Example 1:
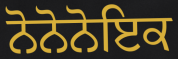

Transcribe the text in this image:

ਨੋਨੋਨੋਇਕ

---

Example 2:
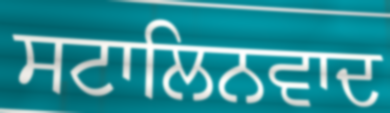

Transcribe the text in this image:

ਸਟਾਲਿਨਵਾਦ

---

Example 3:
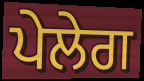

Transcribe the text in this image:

ਪੇਲੇਗ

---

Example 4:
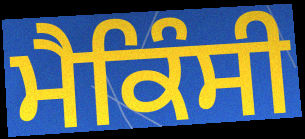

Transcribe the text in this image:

ਮੈਕਿੰਸੀ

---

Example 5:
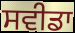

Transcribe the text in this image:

ਸਵੀਡਾ